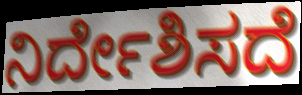
ನಿರ್ದೇಶಿಸದೆ